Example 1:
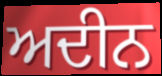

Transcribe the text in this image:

ਅਦੀਨ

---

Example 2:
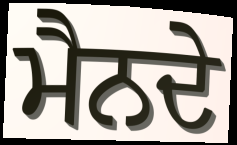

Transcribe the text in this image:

ਮੈਨਦੇ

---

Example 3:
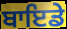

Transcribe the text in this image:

ਬਾਇਡੇ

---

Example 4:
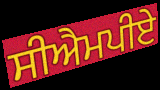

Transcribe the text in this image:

ਸੀਐਮਪੀਏ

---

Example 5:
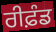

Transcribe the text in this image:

ਰੀਫ਼ੰਡ